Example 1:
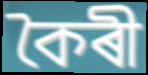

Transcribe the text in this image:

কৈৰী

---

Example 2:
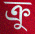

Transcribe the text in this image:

ক্ৰু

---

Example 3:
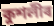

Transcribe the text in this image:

কুশলীৰ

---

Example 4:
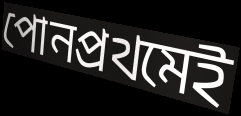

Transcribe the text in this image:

পোনপ্ৰথমেই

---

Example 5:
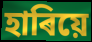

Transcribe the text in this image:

হাৰিয়ে